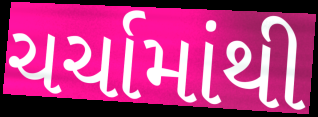
ચર્ચામાંથી